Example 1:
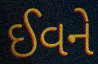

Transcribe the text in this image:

ઈવને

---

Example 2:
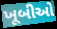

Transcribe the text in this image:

ખૂબીઓ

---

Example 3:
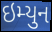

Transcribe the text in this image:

ઇમ્યુન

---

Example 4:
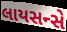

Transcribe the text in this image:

લાયસન્સે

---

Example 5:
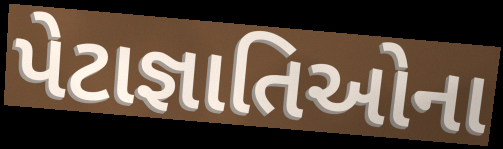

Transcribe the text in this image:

પેટાજ્ઞાતિઓના